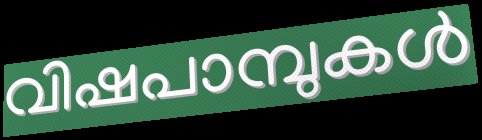
വിഷപാമ്പുകൾ